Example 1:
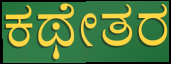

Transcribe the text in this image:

ಕಥೇತರ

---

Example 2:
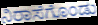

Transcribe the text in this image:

ನಿರಾಸೆಗೊಂಡು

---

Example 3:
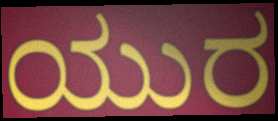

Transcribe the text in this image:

ಯುರ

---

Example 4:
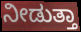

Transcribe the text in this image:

ನೀಡುತ್ತಾ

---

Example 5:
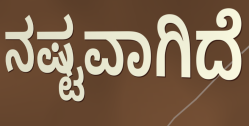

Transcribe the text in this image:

ನಷ್ಟವಾಗಿದೆ